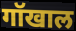
गॉखाल